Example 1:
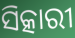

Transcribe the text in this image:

ସିତ୍କାରୀ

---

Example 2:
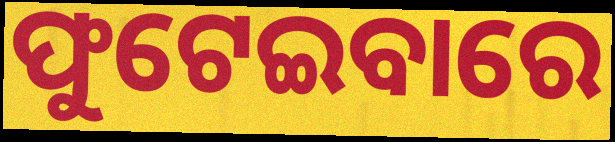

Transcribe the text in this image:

ଫୁଟେଇବାରେ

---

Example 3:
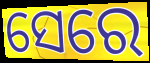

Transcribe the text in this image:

ସେରେ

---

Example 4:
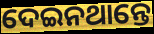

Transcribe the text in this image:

ଦେଇନଥାନ୍ତେ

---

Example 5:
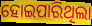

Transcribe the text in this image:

ହୋଇପାରିଥିଲା